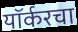
यॉर्करचा